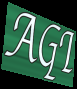
AGI